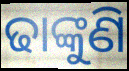
ଢାଙ୍କୁଣି